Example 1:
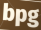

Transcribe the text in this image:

bpg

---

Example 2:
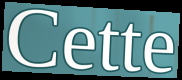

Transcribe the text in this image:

Cette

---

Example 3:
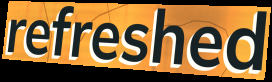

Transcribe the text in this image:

refreshed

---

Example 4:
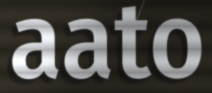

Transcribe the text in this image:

aato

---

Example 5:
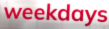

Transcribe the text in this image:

weekdays